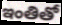
ఇంతితో